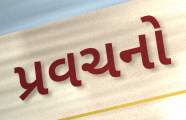
પ્રવચનો